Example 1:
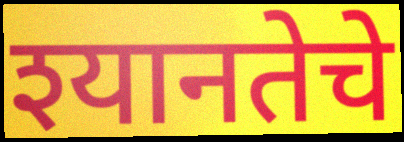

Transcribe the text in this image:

श्यानतेचे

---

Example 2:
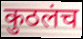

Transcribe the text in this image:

कुठलंच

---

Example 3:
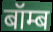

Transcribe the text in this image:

बॉम्ब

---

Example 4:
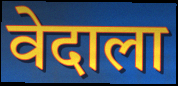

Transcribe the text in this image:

वेदाला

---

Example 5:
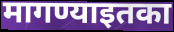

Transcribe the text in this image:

मागण्याइतका